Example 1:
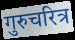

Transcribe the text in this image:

गुरुचरित्र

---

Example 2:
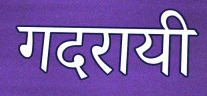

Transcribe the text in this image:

गदरायी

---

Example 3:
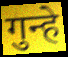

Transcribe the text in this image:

गुन्हे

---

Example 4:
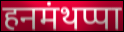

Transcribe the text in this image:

हनमंथप्पा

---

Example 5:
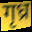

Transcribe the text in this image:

गृध्र